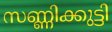
സണ്ണിക്കുട്ടി